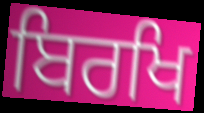
ਬਿਰਖਿ